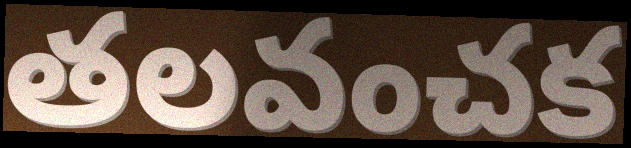
తలవంచక